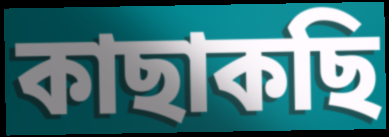
কাছাকছি